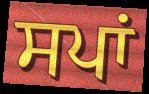
ਸਪਾਂ